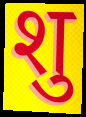
शु